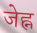
जेह्न